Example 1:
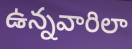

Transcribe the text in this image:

ఉన్నవారిలా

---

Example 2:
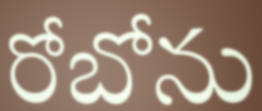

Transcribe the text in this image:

రోబోను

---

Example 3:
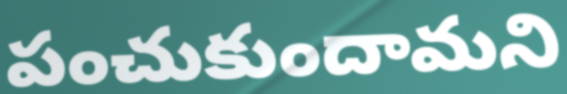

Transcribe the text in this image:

పంచుకుందామని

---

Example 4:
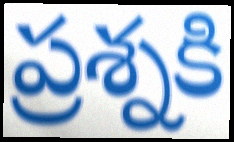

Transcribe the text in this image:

ప్రశ్నకి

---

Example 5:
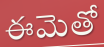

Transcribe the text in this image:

ఈమెతో